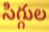
సిగ్గుల